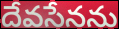
దేవసేనను